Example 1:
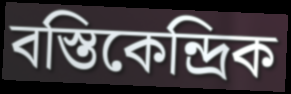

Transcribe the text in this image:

বস্তিকেন্দ্রিক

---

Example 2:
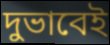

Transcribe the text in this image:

দুভাবেই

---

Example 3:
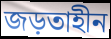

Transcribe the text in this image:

জড়তাহীন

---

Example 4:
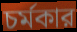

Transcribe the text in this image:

চর্মকার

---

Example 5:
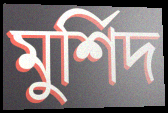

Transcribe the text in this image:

মুর্শিদ